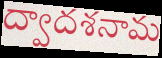
ద్వాదశనామ